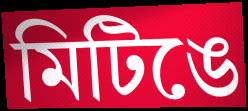
মিটিঙে